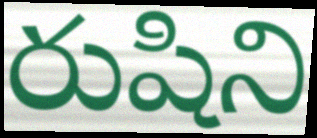
రుషిని